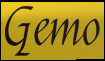
Gemo